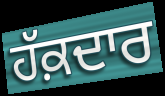
ਹੱਕ਼ਦਾਰ